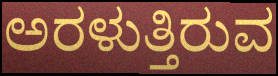
ಅರಳುತ್ತಿರುವ